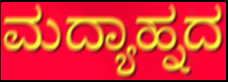
ಮದ್ಯಾಹ್ನದ